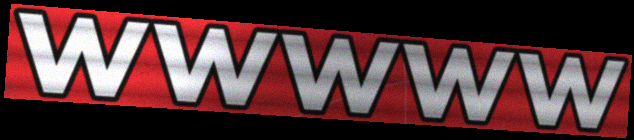
wwwww